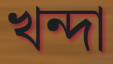
খন্দা